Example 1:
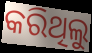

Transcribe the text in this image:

କରିଥିଲୁ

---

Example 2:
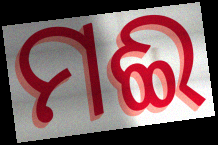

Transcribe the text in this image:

ମଈ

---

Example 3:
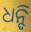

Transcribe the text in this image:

ଧନ୍ଦି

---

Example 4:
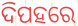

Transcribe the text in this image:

ଦିପହରେ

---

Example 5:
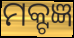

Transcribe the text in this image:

ମକ୍ଟଜ୍ଞ